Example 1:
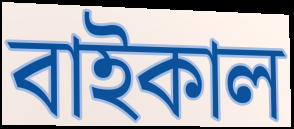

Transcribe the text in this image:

বাইকাল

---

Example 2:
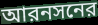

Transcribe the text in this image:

আরনসনের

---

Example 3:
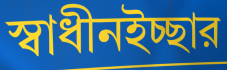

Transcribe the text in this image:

স্বাধীনইচ্ছার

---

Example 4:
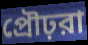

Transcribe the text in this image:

প্রৌঢ়রা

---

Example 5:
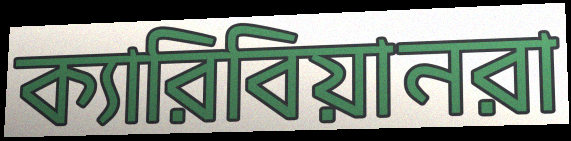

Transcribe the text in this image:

ক্যারিবিয়ানরা